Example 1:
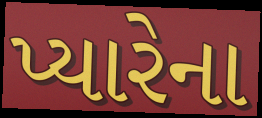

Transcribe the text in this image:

પ્યારેના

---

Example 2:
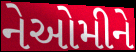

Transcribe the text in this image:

નેઓમીને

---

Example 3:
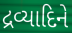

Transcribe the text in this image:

દ્રવ્યાદિને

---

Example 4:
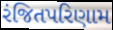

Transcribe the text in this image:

રંજિતપરિણામ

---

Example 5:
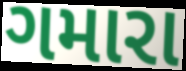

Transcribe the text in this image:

ગમારા